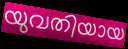
യുവതിയായ